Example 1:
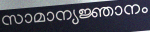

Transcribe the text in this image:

സാമാന്യജ്ഞാനം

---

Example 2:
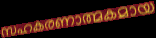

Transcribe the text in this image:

സഹകരണാത്മകമായ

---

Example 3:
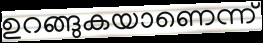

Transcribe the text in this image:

ഉറങ്ങുകയാണെന്ന്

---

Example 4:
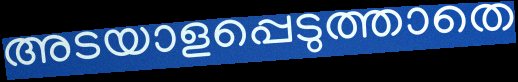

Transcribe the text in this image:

അടയാളപ്പെടുത്താതെ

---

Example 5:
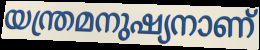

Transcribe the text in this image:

യന്ത്രമനുഷ്യനാണ്